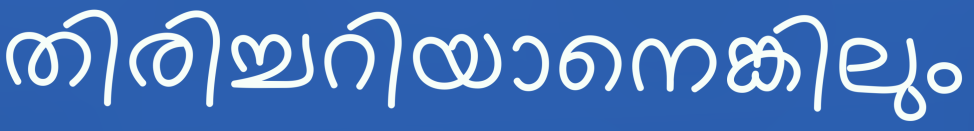
തിരിച്ചറിയാനെങ്കിലും